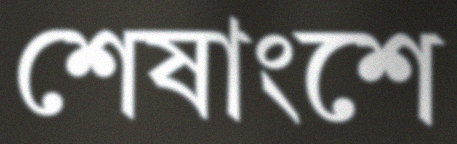
শেষাংশে